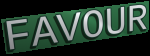
FAVOUR